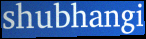
shubhangi